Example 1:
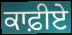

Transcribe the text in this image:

ਕਾਫ਼ੀਏ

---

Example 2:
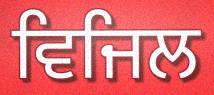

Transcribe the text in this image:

ਵਿਜਿਲ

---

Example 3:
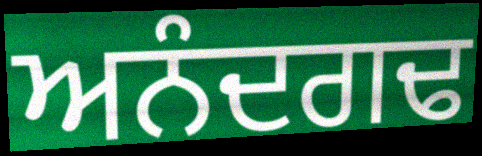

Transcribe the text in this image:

ਅਨੰਦਗਢ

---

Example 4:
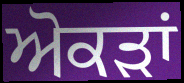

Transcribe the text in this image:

ਅੋਕੜਾਂ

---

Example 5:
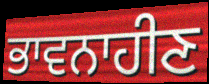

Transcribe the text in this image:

ਭਾਵਨਾਹੀਣ